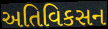
અતિવિકસન